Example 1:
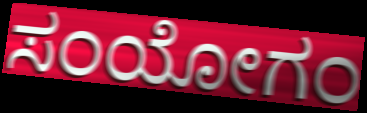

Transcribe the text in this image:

ಸಂಯೋಗಂ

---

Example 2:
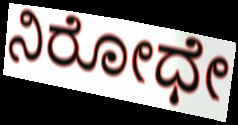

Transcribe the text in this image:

ನಿರೋಧೇ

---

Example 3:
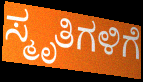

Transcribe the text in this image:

ಸ್ಮೃತಿಗಳಿಗೆ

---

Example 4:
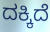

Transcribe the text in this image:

ದಕ್ಕಿದೆ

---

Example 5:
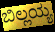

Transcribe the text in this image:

ಬಿಲ್ಲಯ್ಯ